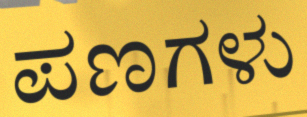
ಪಣಗಳು